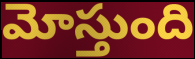
మోస్తుంది